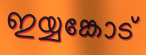
ഇയ്യങ്കോട്